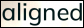
aligned